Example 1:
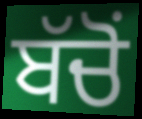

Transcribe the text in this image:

ਬੱਚੋਂ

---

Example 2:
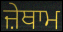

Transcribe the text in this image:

ਜ਼ੇਥਾਮ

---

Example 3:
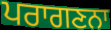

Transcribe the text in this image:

ਪਰਾਗਣਨਾ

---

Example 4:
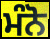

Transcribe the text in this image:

ਮੰਨੋ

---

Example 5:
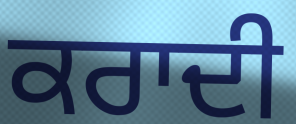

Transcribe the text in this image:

ਕਰਾਦੀ